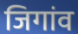
जिगांव